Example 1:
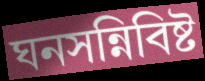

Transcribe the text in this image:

ঘনসন্নিবিষ্ট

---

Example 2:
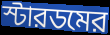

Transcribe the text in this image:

স্টারডমের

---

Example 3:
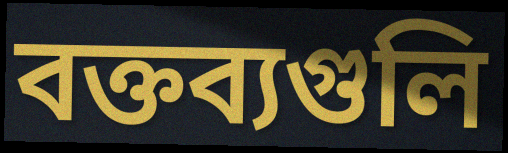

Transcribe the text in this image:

বক্তব্যগুলি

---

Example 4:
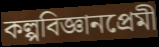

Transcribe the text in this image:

কল্পবিজ্ঞানপ্রেমী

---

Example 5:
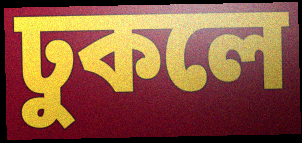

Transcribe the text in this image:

ঢুকলে